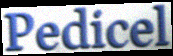
Pedicel